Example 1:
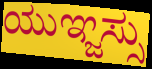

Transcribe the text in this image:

ಯುಞ್ಜಸ್ಸು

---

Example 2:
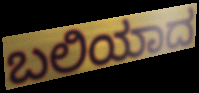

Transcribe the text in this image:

ಬಲಿಯಾದ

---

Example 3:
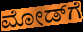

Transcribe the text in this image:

ಮೋಡ್‌ಗೆ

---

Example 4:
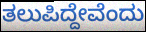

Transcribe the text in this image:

ತಲುಪಿದ್ದೇವೆಂದು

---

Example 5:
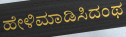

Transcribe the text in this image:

ಹೇಳಿಮಾಡಿಸಿದಂಥ